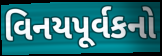
વિનયપૂર્વકનો